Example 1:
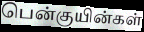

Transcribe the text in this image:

பென்குயின்கள்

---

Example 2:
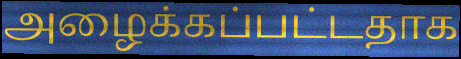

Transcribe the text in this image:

அழைக்கப்பட்டதாக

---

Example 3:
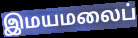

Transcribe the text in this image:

இமயமலைப்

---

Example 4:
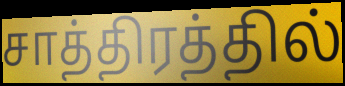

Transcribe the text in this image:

சாத்திரத்தில்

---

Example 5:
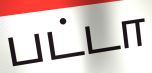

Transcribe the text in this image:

பட்டா